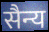
सैन्‍य